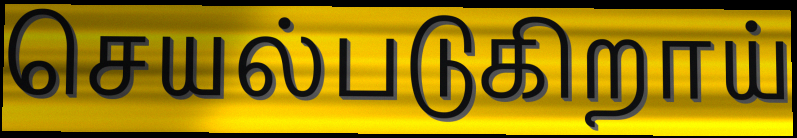
செயல்படுகிறாய்